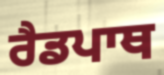
ਰੈਡਪਾਥ